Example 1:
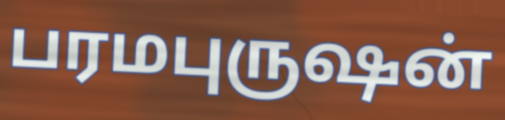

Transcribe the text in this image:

பரமபுருஷன்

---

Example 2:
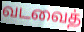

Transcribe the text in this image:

வடவைத்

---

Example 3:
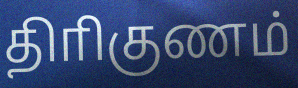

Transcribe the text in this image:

திரிகுணம்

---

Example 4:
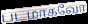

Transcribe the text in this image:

படமாகவோ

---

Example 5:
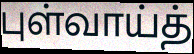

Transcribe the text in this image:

புள்வாய்த்